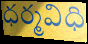
ధర్మవిధి